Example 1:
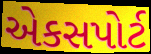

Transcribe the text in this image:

એકસપોર્ટ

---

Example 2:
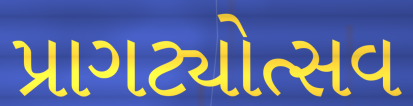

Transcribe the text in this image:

પ્રાગટ્યોત્સવ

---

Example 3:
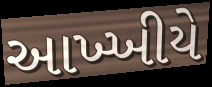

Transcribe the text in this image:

આખ્ખીયે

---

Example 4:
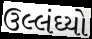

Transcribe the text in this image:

ઉલ્લંઘ્યો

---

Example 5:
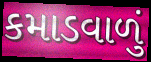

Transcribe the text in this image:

કમાડવાળું